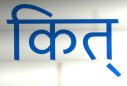
कित्